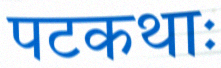
पटकथाः